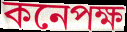
কনেপক্ষ